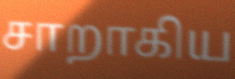
சாறாகிய